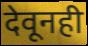
देवूनही